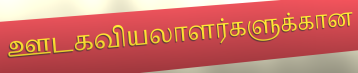
ஊடகவியலாளர்களுக்கான